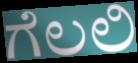
ಗೆಲಲಿ